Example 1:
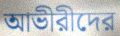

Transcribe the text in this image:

আভীরীদের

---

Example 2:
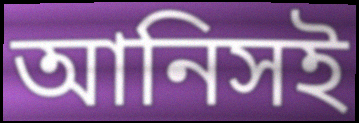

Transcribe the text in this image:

আনিসই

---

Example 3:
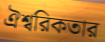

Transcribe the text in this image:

ঐশ্বরিকতার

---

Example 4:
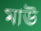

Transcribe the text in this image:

মাউ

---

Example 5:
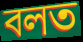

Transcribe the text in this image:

বলত